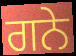
ਗਨੇ